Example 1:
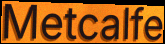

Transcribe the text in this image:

Metcalfe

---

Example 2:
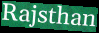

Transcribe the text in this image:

Rajsthan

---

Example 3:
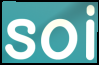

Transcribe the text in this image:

soi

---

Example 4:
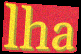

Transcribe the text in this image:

lha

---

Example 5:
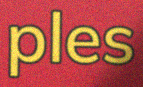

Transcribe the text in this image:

ples